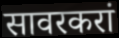
सावरकरां